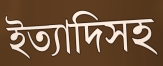
ইত্যাদিসহ